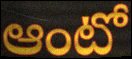
ఆంటో